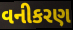
વનીકરણ